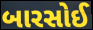
બારસોઈ